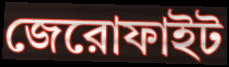
জেরোফাইট